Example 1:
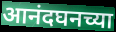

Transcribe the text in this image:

आनंदघनच्या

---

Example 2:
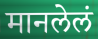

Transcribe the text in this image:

मानलेलं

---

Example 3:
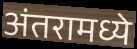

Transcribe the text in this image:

अंतरामध्ये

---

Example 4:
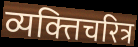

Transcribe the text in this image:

व्यक्तिचरित्र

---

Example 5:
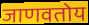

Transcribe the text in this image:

जाणवतोय